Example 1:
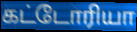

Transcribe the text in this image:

கட்டோரியா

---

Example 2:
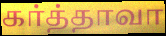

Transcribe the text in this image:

கர்த்தாவா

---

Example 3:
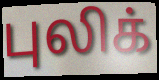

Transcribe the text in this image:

புலிக்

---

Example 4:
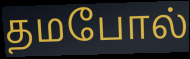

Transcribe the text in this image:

தமபோல்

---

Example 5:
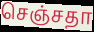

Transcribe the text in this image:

செஞ்சதா